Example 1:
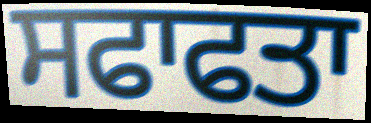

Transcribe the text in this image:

ਸਫਾਫਤਾ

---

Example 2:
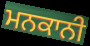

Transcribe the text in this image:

ਮਨਕਾਨੀ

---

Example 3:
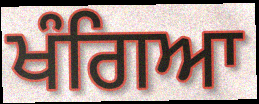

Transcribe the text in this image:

ਖੰਗਿਆ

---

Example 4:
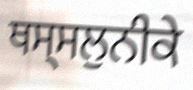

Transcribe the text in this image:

ਥਸ੍ਸਲੁਨੀਕੇ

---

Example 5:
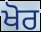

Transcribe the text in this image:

ਖੋਰ